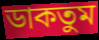
ডাকতুম